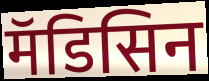
मॅडिसिन